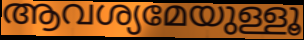
ആവശ്യമേയുള്ളൂ